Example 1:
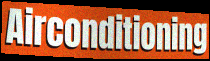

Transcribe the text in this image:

Airconditioning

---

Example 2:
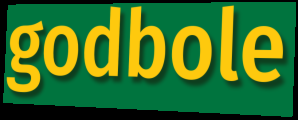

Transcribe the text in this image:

godbole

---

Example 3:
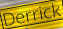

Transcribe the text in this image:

Derrick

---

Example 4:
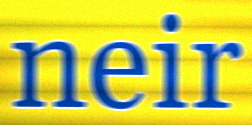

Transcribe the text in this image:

neir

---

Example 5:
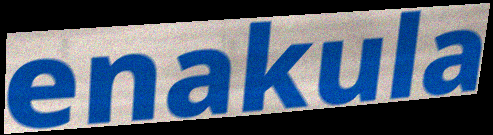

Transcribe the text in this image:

enakula